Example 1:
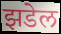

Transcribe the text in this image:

झडेल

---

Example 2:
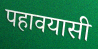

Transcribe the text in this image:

पहावयासी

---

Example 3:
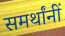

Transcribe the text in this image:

समर्थांनीं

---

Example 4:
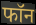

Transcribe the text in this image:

फॉन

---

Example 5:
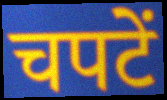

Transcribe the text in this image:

चपटें